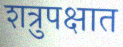
शत्रुपक्षात